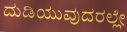
ದುಡಿಯುವುದರಲ್ಲೇ